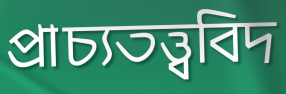
প্রাচ্যতত্ত্ববিদ